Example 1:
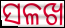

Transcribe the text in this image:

ସଳଖ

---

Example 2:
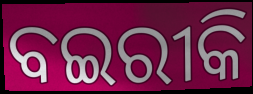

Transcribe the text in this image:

ବଇରୀକି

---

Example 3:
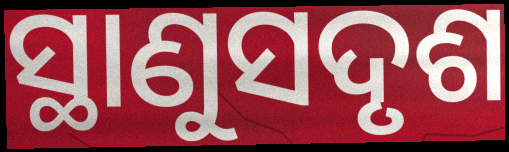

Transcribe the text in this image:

ସ୍ଥାଣୁସଦୃଶ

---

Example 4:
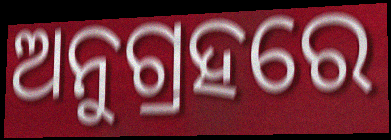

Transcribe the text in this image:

ଅନୁଗ୍ରହରେ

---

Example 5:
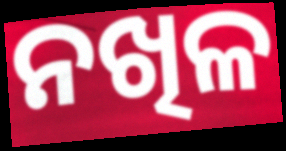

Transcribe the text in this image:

ନଖିଳ